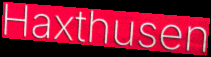
Haxthusen